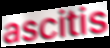
ascitis